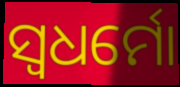
ସ୍ୱଧର୍ମୋ